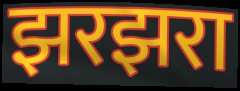
झरझरा